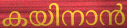
കയിനാൻ